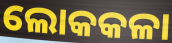
ଲୋକକଳା